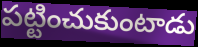
పట్టించుకుంటాడు